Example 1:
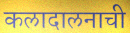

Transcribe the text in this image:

कलादालनाची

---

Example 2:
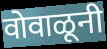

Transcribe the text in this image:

वोवाळूनी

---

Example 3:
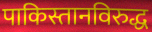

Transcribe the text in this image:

पाकिस्तानविरुद्ध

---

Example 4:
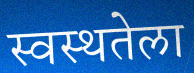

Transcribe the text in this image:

स्वस्थतेला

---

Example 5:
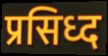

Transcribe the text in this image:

प्रसिध्द